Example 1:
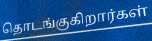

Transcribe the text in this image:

தொடங்குகிறார்கள்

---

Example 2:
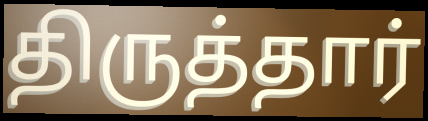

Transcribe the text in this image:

திருத்தார்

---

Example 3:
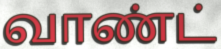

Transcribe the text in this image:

வாண்ட்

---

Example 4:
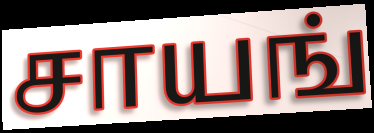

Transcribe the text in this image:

சாயங்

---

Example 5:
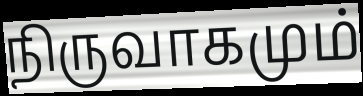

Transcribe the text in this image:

நிருவாகமும்